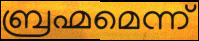
ബ്രഹ്മമെന്ന്